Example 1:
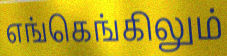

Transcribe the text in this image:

எங்கெங்கிலும்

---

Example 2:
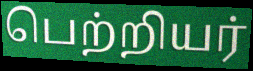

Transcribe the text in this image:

பெற்றியர்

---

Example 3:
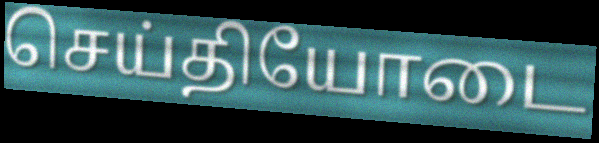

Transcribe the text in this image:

செய்தியோடை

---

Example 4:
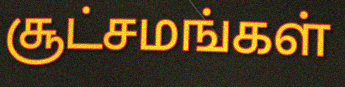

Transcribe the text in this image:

சூட்சமங்கள்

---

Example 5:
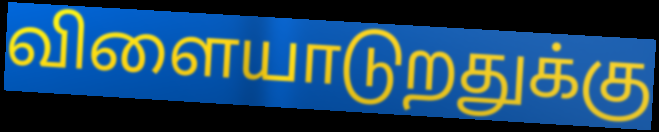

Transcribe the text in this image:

விளையாடுறதுக்கு